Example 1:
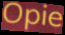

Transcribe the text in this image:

Opie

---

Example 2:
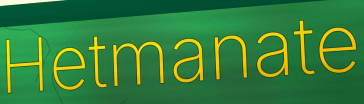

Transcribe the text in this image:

Hetmanate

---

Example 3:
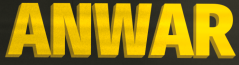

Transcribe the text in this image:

ANWAR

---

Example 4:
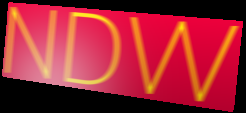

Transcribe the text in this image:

NDW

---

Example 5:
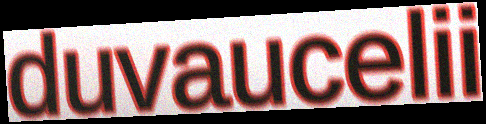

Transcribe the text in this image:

duvaucelii